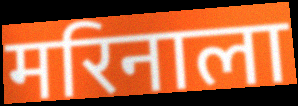
मरिनाला